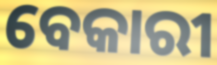
ବେକାରୀ